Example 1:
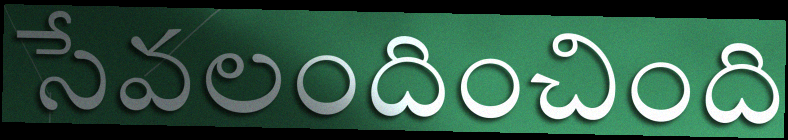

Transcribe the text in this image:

సేవలందించింది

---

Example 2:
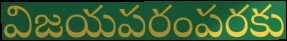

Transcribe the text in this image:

విజయపరంపరకు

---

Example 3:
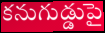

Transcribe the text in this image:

కనుగుడ్డుపై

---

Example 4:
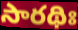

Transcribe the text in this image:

సారథిః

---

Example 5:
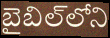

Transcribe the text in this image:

బైబిల్‌లోని